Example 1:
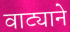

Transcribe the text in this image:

वाट्याने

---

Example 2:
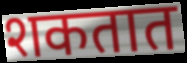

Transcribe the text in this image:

शकतात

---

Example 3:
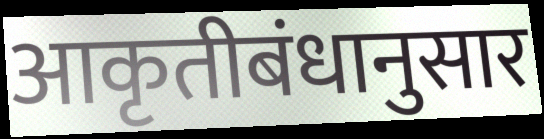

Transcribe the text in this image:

आकृतीबंधानुसार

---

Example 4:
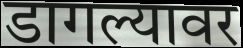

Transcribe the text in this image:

डागल्यावर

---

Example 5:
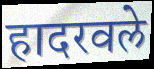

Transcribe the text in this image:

हादरवले